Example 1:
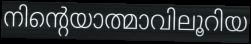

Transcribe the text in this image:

നിന്റെയാത്മാവിലൂറിയ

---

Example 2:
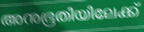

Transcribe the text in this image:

അനുഭൂതിയിലേക്ക്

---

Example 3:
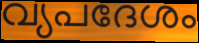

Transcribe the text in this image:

വ്യപദേശം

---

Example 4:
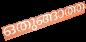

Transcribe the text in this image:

ഒതുങ്ങാത്ത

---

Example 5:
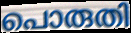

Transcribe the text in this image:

പൊരുതി